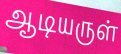
ஆடியருள்